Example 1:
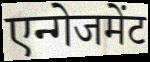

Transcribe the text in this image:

एन्गेजमेंट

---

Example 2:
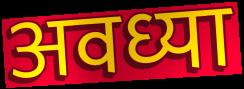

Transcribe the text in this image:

अवध्या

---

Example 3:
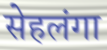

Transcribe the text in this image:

सेहलंगा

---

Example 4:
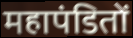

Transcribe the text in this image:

महापंडितों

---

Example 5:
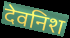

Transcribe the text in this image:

देवनिश